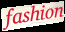
fashion